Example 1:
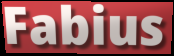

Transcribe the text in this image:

Fabius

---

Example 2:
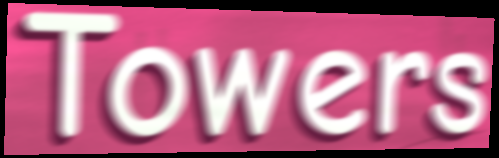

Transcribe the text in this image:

Towers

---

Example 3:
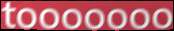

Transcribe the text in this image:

tooooooo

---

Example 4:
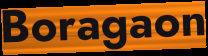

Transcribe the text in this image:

Boragaon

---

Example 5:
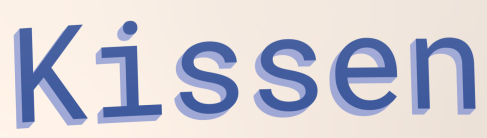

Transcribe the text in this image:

Kissen